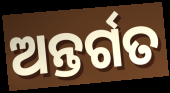
ଅନ୍ତର୍ଗତ